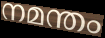
നമന്തം